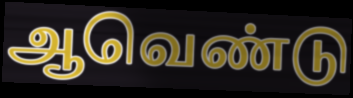
ஆவெண்டு